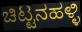
ಚಿಟ್ಟನಹಳ್ಳಿ